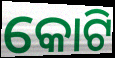
କୋଟି